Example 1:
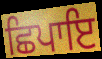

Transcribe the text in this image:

ਛਿਪਾਇ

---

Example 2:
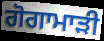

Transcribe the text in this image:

ਗੋਗਾਮਾੜੀ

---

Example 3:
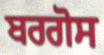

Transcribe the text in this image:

ਬਰਗੋਸ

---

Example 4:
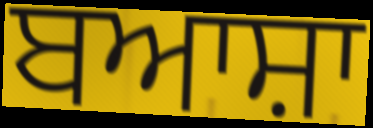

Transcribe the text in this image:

ਬਆਸ਼ਾ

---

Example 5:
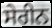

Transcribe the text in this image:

ਸੇਰੀਨ